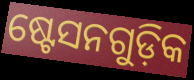
ଷ୍ଟେସନଗୁଡ଼ିକ